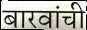
बारवांची